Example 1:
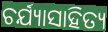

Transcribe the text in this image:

ଚର୍ଯ୍ୟାସାହିତ୍ୟ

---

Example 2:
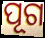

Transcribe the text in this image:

ପୂଗ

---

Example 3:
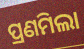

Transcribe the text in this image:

ପ୍ରଣମିଲା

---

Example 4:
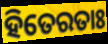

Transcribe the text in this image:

ହିତେରତାଃ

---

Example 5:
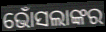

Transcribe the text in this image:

ଭୋଁସଲାଙ୍କର